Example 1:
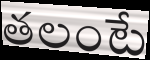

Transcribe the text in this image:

తలంటే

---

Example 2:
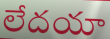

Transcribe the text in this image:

లేదయా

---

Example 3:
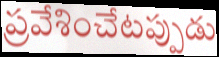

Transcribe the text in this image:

ప్రవేశించేటప్పుడు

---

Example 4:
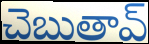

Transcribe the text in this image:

చెబుతావ్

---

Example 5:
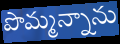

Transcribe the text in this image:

పొమ్మన్నాను